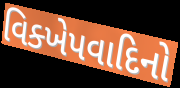
વિક્ખેપવાદિનો